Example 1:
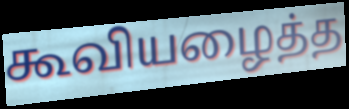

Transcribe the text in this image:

கூவியழைத்த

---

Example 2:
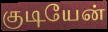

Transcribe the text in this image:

குடியேன்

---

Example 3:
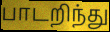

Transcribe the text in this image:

பாடறிந்து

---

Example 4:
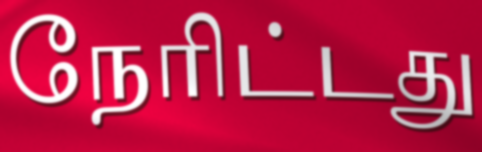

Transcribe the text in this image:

நேரிட்டது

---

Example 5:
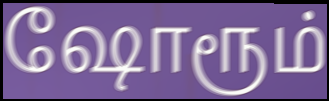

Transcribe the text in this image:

ஷோரூம்